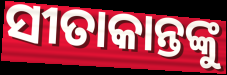
ସୀତାକାନ୍ତଙ୍କୁ